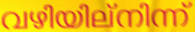
വഴിയില്നിന്ന്